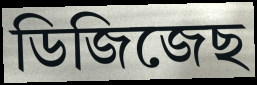
ডিজিজেছ